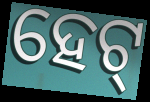
ହେଟ୍